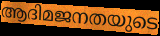
ആദിമജനതയുടെ